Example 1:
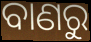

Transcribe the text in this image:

ବାଣରୁ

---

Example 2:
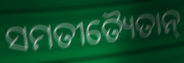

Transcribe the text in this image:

ସମତୀତ୍ୟୈତାନ୍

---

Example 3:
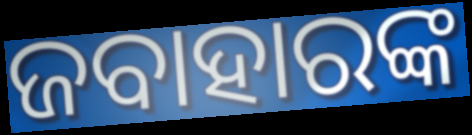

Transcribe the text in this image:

ଜବାହାରଙ୍କ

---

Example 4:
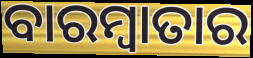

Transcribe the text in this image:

ବାରମ୍ବାତାର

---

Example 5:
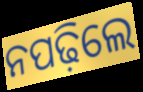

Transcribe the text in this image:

ନପଢ଼ିଲେ